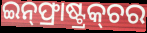
ଇନ୍‌ଫ୍ରାଷ୍ଟ୍ରକ୍‌ଚର